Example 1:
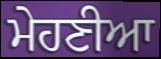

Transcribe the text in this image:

ਮੇਹਣੀਆ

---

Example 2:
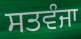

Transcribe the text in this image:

ਸਤਵੰਜਾ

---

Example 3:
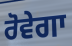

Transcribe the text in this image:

ਰੋਵੇਗਾ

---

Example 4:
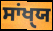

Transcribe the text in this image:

ਸਾਂਖੑਯ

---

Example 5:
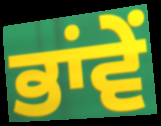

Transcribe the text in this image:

ਭਾਂਵੇਂ